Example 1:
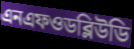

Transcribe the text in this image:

এনএফওডব্লিউডি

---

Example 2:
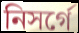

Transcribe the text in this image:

নিসর্গে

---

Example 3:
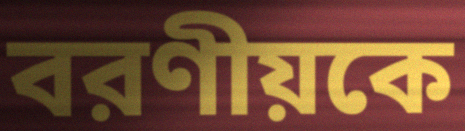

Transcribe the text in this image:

বরণীয়কে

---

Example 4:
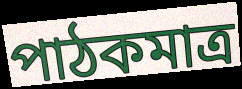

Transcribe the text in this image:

পাঠকমাত্র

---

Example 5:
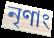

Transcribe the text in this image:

নৃণাং